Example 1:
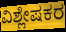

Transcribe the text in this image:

ವಿಶ್ಲೇಷಕರ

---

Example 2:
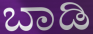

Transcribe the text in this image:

ಬಾಡಿ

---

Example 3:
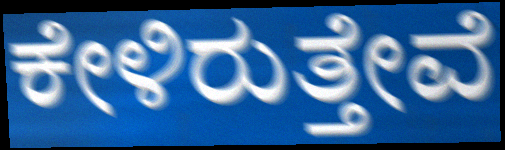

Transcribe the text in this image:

ಕೇಳಿರುತ್ತೇವೆ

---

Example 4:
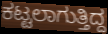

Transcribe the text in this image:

ಕಟ್ಟಲಾಗುತ್ತಿದ್ದ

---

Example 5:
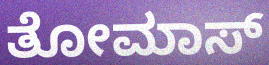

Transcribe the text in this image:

ತೋಮಾಸ್